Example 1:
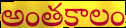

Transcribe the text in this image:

అంతకాలం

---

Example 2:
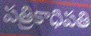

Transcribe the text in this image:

పత్రికాధిపతి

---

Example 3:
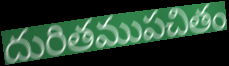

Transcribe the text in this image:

దురితముపచితం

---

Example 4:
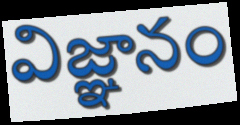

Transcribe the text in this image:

విజ్ఞానం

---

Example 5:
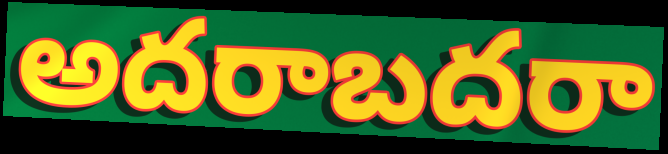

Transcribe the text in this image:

అదరాబదరా